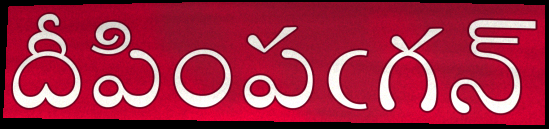
దీపింపఁగన్